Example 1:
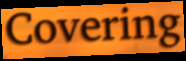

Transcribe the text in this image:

Covering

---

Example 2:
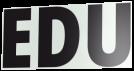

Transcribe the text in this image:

EDU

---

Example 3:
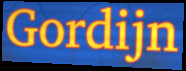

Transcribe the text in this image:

Gordijn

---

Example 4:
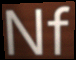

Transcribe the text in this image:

Nf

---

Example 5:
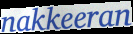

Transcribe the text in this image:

nakkeeran